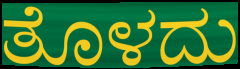
ತೊಳದು